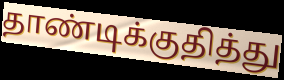
தாண்டிக்குதித்து